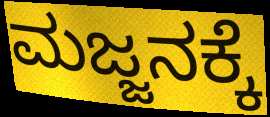
ಮಜ್ಜನಕ್ಕೆ